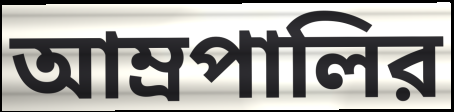
আম্রপালির